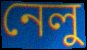
নেলু